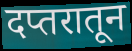
दप्तरातून